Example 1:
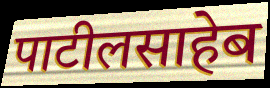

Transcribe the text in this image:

पाटीलसाहेब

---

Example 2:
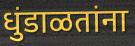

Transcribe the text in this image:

धुंडाळतांना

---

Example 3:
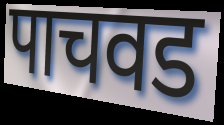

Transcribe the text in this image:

पाचवड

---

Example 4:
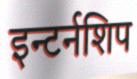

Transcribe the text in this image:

इन्टर्नशिप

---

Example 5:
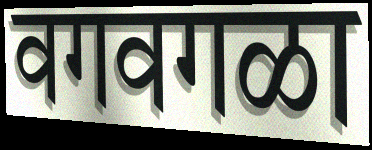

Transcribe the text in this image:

वगवगळा